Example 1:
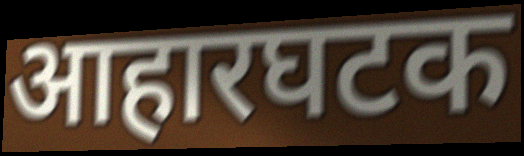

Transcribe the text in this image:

आहारघटक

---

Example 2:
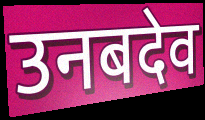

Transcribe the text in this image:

उनबदेव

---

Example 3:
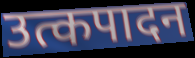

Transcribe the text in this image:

उत्कपादन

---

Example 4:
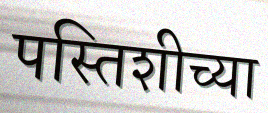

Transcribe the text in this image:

पस्तिशीच्या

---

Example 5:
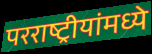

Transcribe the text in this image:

परराष्ट्रीयांमध्ये